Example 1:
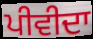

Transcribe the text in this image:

ਪੀਵੀਦਾ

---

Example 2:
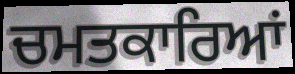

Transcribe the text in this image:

ਚਮਤਕਾਰਿਆਂ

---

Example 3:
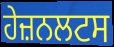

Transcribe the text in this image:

ਹੇਜ਼ਨਲਟਸ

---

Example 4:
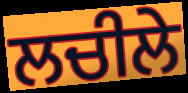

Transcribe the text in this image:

ਲਚੀਲੇ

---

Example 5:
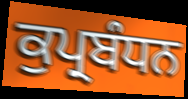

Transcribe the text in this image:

ਕੁਪ੍ਰਬੰਧਨ